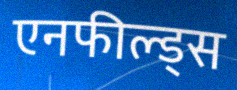
एनफील्ड्स